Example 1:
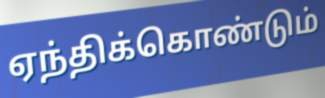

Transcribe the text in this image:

ஏந்திக்கொண்டும்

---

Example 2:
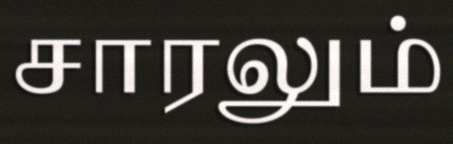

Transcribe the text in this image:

சாரலும்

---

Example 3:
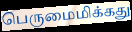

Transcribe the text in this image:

பெருமைமிக்கது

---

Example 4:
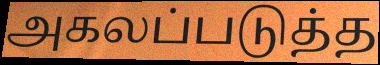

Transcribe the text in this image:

அகலப்படுத்த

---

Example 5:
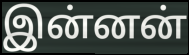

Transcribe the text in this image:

இன்னன்